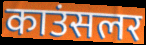
काउंसलर